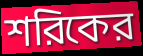
শরিকের